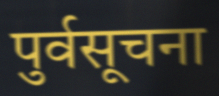
पुर्वसूचना